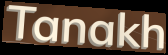
Tanakh